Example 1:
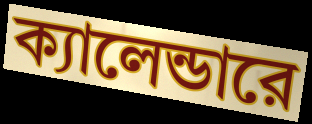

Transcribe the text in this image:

ক্যালেন্ডারে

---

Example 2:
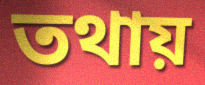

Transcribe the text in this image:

তথায়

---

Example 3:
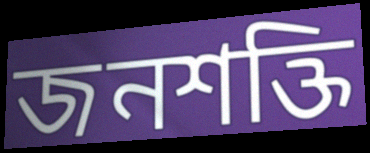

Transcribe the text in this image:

জনশক্তি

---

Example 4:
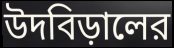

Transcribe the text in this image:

উদবিড়ালের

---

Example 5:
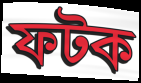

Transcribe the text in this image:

ফটক